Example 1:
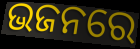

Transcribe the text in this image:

ଭଜନରେ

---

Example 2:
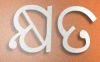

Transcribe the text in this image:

କ୍ଷତ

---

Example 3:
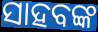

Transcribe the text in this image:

ସାହବଙ୍କ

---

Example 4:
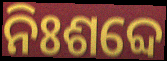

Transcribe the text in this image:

ନିଃଶବ୍ଦେ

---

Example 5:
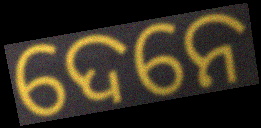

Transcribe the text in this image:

ଦେନେ